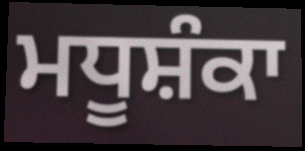
ਮਧੂਸ਼ੰਕਾ